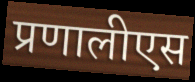
प्रणालीएस